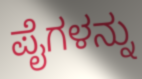
ಪೈಗಳನ್ನು